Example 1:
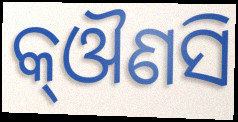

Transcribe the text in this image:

କ୍ଔଣସି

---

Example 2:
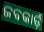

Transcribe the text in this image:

ଜବକାର୍ଡ଼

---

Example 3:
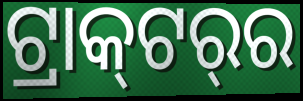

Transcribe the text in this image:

ଟ୍ରାକ୍‍ଟର୍‍ର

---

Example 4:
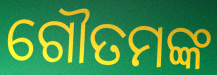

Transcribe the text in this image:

ଗୌତମଙ୍କ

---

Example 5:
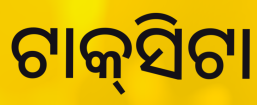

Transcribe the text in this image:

ଟାକ୍‌ସିଟା